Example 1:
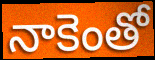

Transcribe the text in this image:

నాకెంతో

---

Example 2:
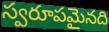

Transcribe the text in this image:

స్వరూపమైనది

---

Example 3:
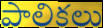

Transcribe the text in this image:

పాలికలు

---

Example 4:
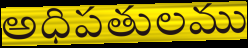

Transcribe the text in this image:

అధిపతులము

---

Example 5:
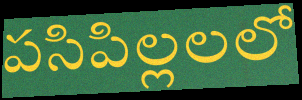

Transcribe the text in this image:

పసిపిల్లలలో